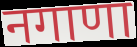
नगाणा